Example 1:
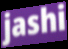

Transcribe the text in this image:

jashi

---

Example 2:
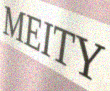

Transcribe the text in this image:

MEITY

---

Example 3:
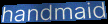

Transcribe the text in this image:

handmaid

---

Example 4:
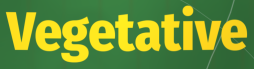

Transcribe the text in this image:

Vegetative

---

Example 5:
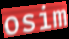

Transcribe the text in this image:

osim